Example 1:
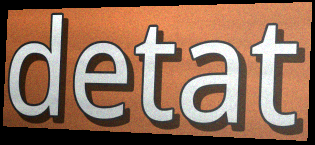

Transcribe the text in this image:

detat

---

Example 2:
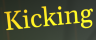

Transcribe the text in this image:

Kicking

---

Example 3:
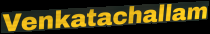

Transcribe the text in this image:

Venkatachallam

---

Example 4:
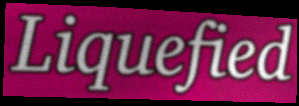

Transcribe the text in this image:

Liquefied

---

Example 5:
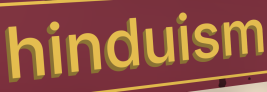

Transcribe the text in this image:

hinduism